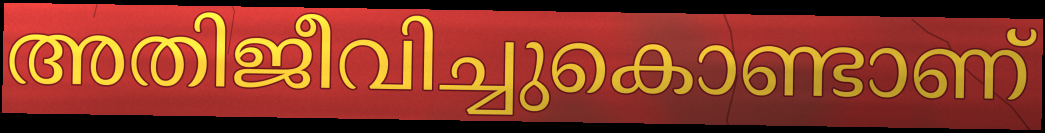
അതിജീവിച്ചുകൊണ്ടാണ്